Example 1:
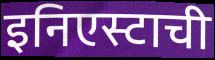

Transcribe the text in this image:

इनिएस्टाची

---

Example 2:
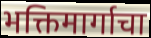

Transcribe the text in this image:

भक्तिमार्गाचा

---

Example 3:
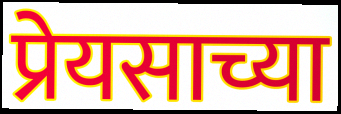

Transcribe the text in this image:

प्रेयसाच्या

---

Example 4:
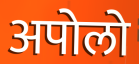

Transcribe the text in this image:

अपोलो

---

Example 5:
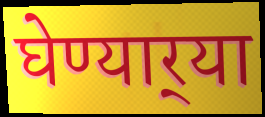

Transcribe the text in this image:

घेण्यार्या